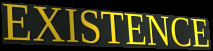
EXISTENCE